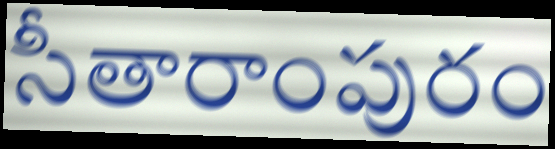
సీతారాంపురం